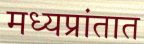
मध्यप्रांतात